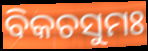
ବିକଚସୁମଃ